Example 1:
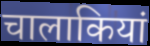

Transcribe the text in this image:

चालाकियां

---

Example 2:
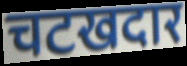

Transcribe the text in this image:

चटखदार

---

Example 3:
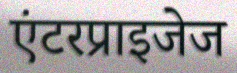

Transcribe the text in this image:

एंटरप्राइजेज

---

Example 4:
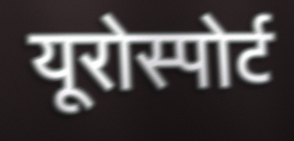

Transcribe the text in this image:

यूरोस्पोर्ट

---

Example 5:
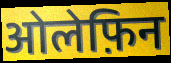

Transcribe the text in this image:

ओलेफ़िन